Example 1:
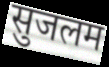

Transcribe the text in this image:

सुजलम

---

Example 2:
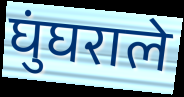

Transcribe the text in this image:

घुंघराले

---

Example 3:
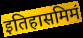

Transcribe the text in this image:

इतिहासमिमं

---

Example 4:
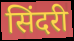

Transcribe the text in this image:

सिंदरी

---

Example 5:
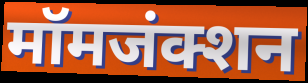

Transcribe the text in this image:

मॉमजंक्शन